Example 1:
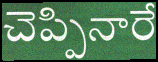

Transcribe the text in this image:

చెప్పినారే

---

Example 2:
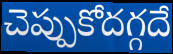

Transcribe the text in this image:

చెప్పుకోదగ్గదే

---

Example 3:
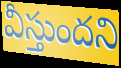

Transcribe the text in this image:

వీస్తుందని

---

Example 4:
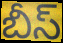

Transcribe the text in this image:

బీస్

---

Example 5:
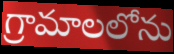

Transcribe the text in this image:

గ్రామాలలోను